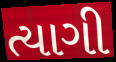
ત્યાગી